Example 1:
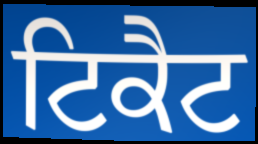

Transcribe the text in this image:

ਟਿਕੈਟ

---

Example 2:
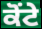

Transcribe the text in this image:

ਕੋਂਟੇ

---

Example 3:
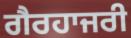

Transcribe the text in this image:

ਗੈਰਹਾਜਰੀ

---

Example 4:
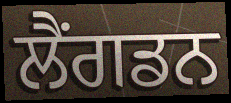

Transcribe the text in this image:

ਲੈਂਗਡਨ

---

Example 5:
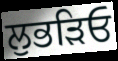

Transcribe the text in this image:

ਲੁਭੜਿਓ